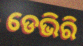
ଡେଭିରି